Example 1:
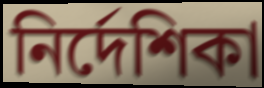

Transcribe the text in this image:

নির্দেশিকা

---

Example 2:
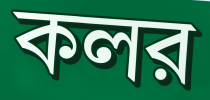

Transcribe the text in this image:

কলর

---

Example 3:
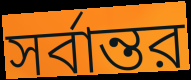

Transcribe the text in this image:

সর্বান্তর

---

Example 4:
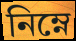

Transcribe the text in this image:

নিম্নে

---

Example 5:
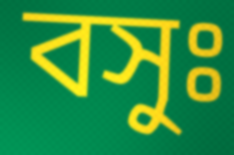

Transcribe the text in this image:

বসুঃ